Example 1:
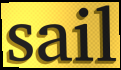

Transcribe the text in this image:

sail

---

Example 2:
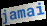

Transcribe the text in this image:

jamai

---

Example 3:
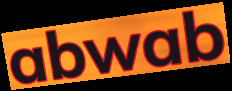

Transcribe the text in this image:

abwab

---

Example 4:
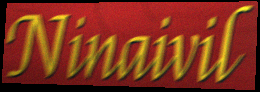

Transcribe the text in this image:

Ninaivil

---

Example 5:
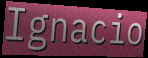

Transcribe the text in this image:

Ignacio